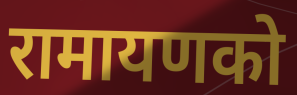
रामायणको